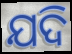
ଯଦି